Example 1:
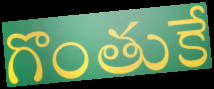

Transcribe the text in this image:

గొంతుకే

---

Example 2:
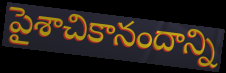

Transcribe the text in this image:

పైశాచికానందాన్ని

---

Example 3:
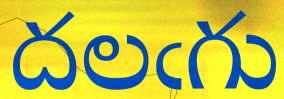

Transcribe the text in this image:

దలఁగు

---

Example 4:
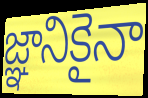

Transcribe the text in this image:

జ్ఞానికైనా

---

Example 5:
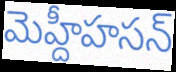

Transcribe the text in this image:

మెహ్దీహసన్